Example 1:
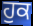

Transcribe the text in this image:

ਹੁਕ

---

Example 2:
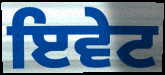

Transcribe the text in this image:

ਇਵੇਟ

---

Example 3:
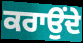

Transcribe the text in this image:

ਕਰਾਉਂਦੇ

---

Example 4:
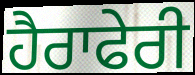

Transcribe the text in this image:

ਹੈਰਾਫੇਰੀ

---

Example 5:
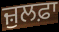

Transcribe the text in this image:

ਜ਼ੁਲਫ਼ਾ